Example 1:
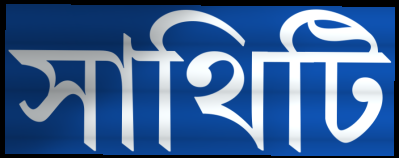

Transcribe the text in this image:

সাথিটি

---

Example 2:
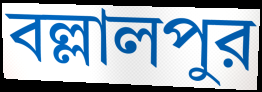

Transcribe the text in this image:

বল্লালপুর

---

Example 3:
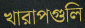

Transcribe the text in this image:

খারাপগুলি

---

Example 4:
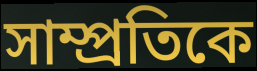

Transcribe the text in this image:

সাম্প্রতিকে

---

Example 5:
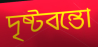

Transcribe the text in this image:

দৃষ্টবন্তো